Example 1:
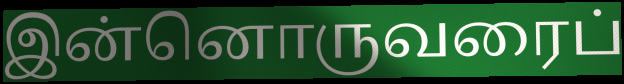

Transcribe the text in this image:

இன்னொருவரைப்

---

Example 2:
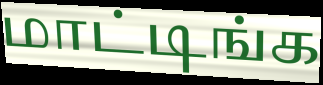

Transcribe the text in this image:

மாட்டிங்க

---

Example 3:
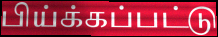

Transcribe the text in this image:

பிய்க்கப்பட்டு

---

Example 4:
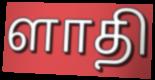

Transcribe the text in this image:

ளாதி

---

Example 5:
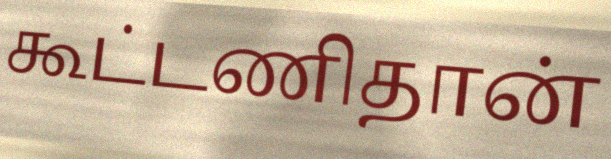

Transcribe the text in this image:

கூட்டணிதான்